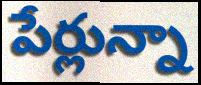
పేర్లున్నా